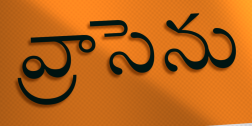
వ్రాసెను